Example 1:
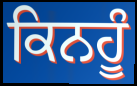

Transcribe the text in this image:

ਕਿਨਹੂੰ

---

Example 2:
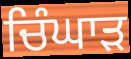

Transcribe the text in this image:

ਚਿੰਘਾੜ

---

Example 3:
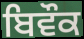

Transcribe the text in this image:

ਬਿਵੌਕ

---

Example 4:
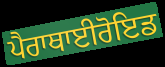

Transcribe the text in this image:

ਪੈਰਾਥਾਈਰੋਇਡ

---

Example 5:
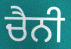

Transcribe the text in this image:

ਚੈਨੀ